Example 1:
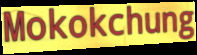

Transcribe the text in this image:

Mokokchung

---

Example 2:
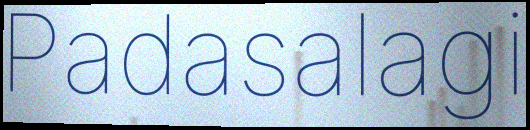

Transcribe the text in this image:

Padasalagi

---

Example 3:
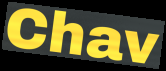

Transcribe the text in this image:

Chav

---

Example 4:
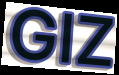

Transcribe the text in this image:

GIZ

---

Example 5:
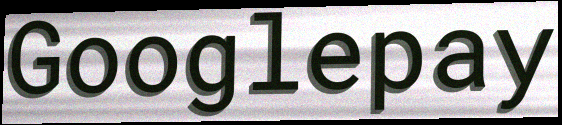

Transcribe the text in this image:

Googlepay